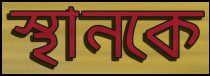
স্থানকে